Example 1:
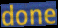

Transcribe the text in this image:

done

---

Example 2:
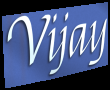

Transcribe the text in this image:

Vijay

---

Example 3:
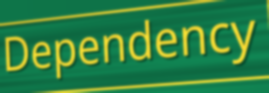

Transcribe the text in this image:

Dependency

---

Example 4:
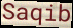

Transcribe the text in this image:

Saqib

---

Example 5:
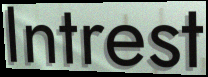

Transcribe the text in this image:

Intrest